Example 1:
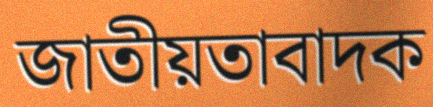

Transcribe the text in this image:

জাতীয়তাবাদক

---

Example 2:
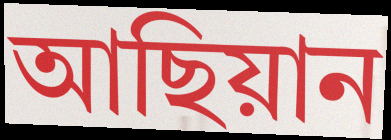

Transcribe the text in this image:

আছিয়ান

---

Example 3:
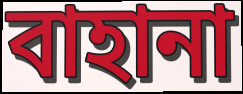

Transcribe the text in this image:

বাহানা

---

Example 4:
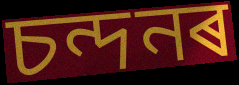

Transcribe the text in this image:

চন্দনৰ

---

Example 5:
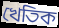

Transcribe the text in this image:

খেতিক